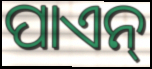
ପାଏନ୍